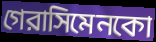
গেরাসিমেনকো